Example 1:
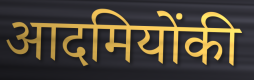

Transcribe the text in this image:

आदमियोंकी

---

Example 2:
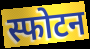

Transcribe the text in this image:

स्फोटन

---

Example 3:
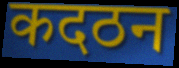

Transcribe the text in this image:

कदठन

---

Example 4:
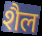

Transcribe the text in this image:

शैल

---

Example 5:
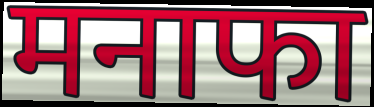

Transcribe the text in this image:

मनाफा